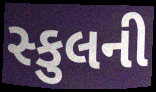
સ્કુલની